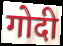
गोदी